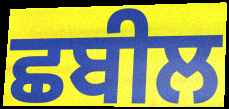
ਛਬੀਲ